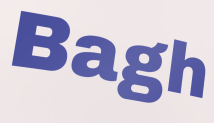
Bagh